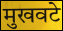
मुखवटे